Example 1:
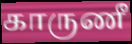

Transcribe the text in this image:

காருணீ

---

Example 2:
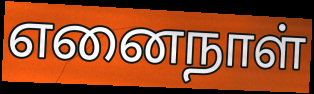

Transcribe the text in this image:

எனைநாள்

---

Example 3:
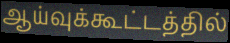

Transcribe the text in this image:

ஆய்வுக்கூட்டத்தில்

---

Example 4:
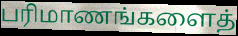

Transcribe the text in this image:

பரிமாணங்களைத்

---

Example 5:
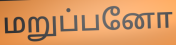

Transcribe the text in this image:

மறுப்பனோ